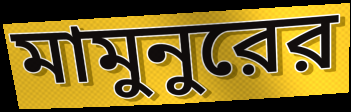
মামুনুরের